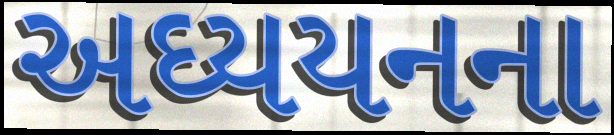
અઘ્યયનના